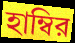
হাম্বির